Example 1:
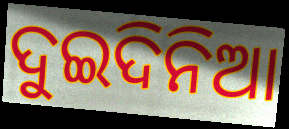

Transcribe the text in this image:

ଦୁଇଦିନିଆ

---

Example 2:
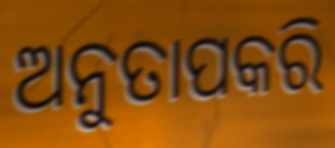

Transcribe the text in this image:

ଅନୁତାପକରି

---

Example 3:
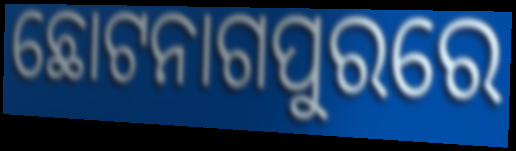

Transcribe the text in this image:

ଛୋଟନାଗପୁରରେ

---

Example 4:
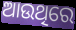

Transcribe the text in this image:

ଆଉଥିରେ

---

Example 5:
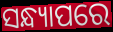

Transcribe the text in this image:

ସନ୍ଧ୍ୟାପରେ